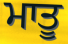
ਮਾਤੂ